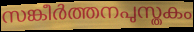
സങ്കീർത്തനപുസ്തകം